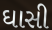
ઘાસી